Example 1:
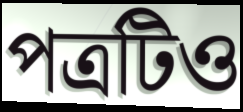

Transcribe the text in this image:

পত্রটিও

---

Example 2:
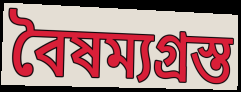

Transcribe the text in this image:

বৈষম্যগ্রস্ত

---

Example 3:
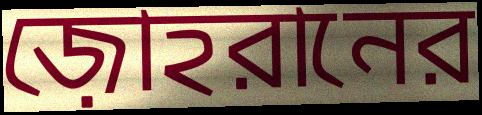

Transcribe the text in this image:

জ়োহরানের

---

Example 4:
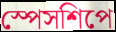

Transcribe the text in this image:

স্পেসশিপে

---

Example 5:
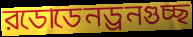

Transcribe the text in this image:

রডোডেনড্রনগুচ্ছ